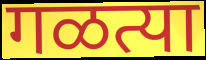
गळत्या